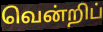
வென்றிப்